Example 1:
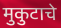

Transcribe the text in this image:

मुकुटाचे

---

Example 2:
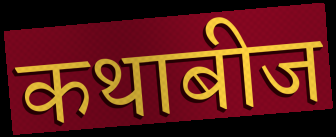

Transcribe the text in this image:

कथाबीज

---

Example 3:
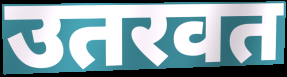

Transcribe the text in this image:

उतरवत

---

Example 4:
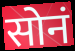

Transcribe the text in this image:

सोनं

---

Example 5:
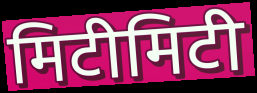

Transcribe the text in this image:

मिटीमिटी